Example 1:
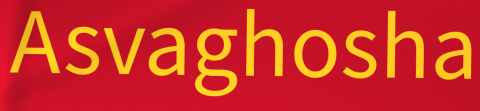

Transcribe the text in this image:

Asvaghosha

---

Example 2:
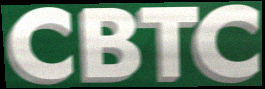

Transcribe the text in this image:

CBTC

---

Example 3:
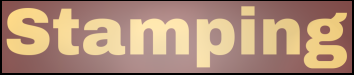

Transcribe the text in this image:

Stamping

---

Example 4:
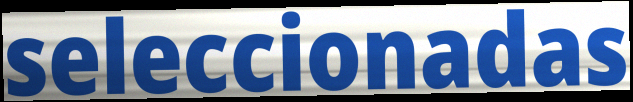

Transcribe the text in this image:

seleccionadas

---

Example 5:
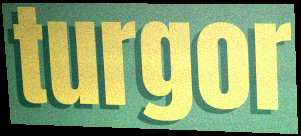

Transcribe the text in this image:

turgor